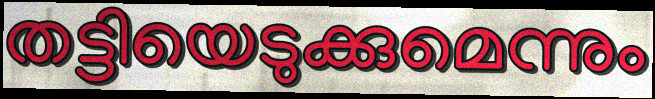
തട്ടിയെടുക്കുമെന്നും